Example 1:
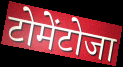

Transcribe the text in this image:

टोमेंटोजा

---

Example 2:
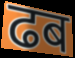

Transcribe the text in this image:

ढब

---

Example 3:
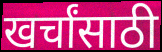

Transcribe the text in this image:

खर्चांसाठी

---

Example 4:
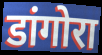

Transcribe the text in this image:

डांगोरा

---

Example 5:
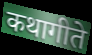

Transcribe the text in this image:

कथागीते